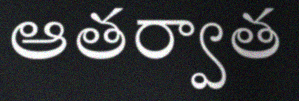
ఆతర్వాత